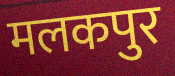
मलकपुर